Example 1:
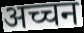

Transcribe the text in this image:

अच्चन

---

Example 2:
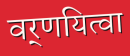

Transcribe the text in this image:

वर्णयित्वा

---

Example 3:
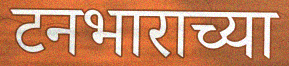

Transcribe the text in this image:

टनभाराच्या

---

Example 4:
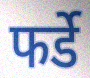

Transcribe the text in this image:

फर्डे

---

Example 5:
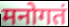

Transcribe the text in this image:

मनोगतं